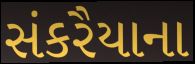
સંકરૈયાના